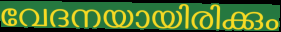
വേദനയായിരിക്കും